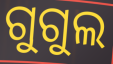
ଗୁଗୁଲ